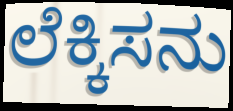
ಲೆಕ್ಕಿಸನು